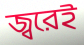
জ্বরেই